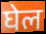
घेल